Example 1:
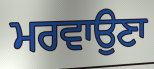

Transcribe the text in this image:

ਮਰਵਾਉਣਾ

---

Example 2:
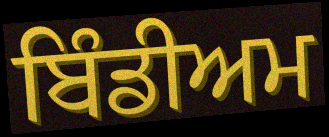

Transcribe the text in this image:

ਬਿੰਡੀਅਮ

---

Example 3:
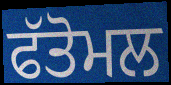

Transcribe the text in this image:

ਫੱਤੋਮਲ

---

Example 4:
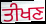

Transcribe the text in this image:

ਤੀਖਣ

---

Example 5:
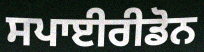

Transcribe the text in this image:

ਸਪਾਈਰੀਡੋਨ